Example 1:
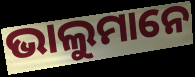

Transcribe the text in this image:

ଭାଲୁମାନେ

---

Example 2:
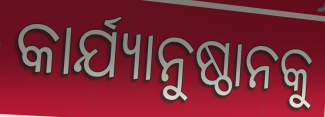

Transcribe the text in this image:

କାର୍ଯ୍ୟାନୁଷ୍ଠାନକୁ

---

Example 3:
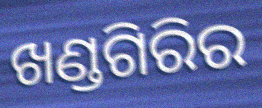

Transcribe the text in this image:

ଖଣ୍ଡଗିରିର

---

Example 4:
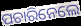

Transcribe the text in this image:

ପଚାରିନେଲେ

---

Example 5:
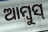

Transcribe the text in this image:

ଆମ୍ବୁସ୍